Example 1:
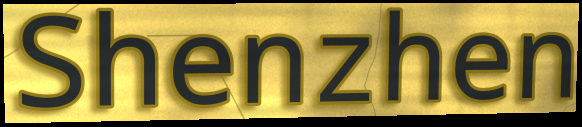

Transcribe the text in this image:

Shenzhen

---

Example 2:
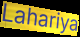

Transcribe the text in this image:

Lahariya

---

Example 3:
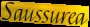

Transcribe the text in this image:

Saussurea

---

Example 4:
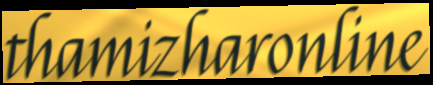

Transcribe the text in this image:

thamizharonline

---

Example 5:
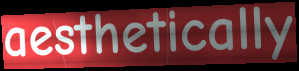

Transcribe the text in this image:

aesthetically